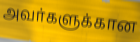
அவர்களுக்கான